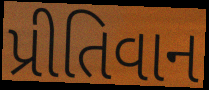
પ્રીતિવાન